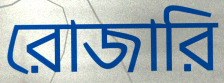
রোজারি